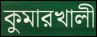
কুমারখালী